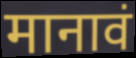
मानावं